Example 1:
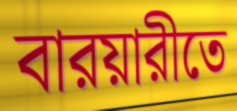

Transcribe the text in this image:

বারয়ারীতে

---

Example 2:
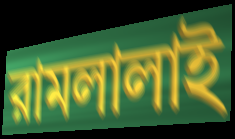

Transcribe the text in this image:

রামলালাই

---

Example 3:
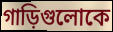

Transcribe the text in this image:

গাড়িগুলোকে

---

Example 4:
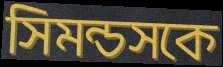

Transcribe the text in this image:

সিমন্ডসকে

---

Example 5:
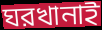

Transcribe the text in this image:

ঘরখানাই